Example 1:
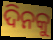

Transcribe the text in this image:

ଦିନକୁ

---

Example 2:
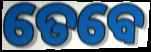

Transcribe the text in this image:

ତେବେ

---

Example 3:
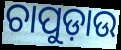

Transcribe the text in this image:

ଚାପୁଡ଼ାଉ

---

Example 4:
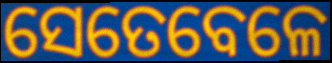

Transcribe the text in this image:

ସେତେବେଳେ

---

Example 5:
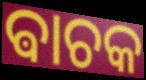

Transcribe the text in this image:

ଵାଚକ